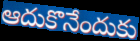
ఆదుకొనేందుకు